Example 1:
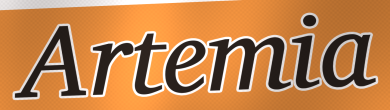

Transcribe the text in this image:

Artemia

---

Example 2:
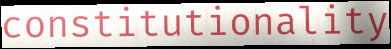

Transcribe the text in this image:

constitutionality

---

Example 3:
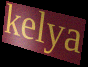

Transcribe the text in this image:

kelya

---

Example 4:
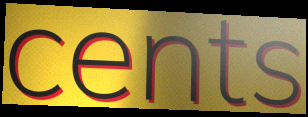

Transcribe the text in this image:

cents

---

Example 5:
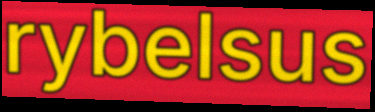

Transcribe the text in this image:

rybelsus